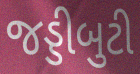
જડ્ડીબુટી